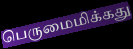
பெருமைமிக்கது